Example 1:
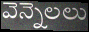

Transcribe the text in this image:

వెన్నెలలు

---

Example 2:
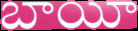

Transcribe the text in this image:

బాయీ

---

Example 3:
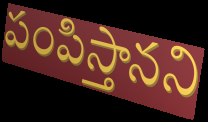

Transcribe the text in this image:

పంపిస్తానని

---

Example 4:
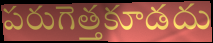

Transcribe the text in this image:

పరుగెత్తకూడదు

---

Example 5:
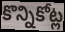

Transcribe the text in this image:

కొన్నికోట్ల